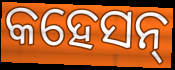
କହେସନ୍